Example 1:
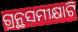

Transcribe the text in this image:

ଗ୍ରନ୍ଥସମୀକ୍ଷାଟି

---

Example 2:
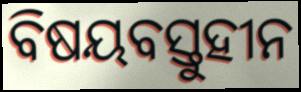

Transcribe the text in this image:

ବିଷୟବସ୍ତୁହୀନ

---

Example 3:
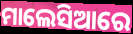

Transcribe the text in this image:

ମାଲେସିଆରେ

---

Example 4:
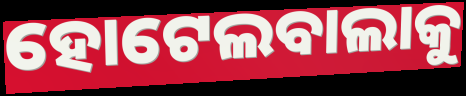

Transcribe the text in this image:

ହୋଟେଲବାଲାକୁ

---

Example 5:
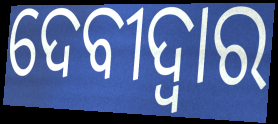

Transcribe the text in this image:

ଦେବୀଦ୍ବାର